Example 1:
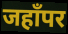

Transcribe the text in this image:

जहाँपर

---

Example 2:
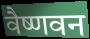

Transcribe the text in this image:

वैष्णवन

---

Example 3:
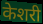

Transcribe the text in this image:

केशरी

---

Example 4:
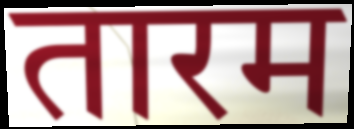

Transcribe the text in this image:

तारम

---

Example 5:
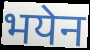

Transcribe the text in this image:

भयेन